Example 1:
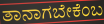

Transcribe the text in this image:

ತಾನಾಗಬೇಕೆಂಬ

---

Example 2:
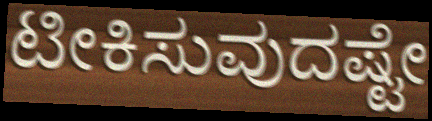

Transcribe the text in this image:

ಟೀಕಿಸುವುದಷ್ಟೇ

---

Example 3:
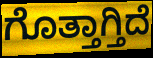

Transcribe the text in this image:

ಗೊತ್ತಾಗ್ತಿದೆ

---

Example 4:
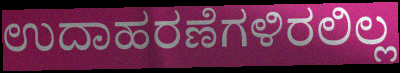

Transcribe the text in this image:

ಉದಾಹರಣೆಗಳಿರಲಿಲ್ಲ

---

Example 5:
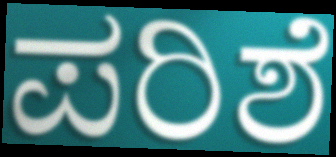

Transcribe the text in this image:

ಪರಿಶೆ